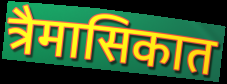
त्रैमासिकात